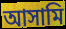
আসামি